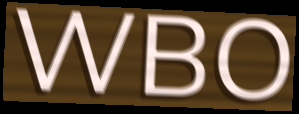
WBO